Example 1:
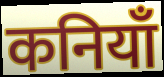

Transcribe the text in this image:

कनियाँ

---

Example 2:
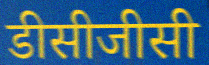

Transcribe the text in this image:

डीसीजीसी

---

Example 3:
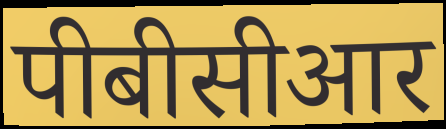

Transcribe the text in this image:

पीबीसीआर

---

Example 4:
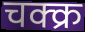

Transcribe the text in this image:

चक्क्र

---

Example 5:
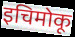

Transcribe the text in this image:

इचिमोकू